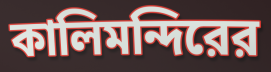
কালিমন্দিরের